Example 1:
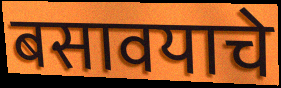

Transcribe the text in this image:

बसावयाचे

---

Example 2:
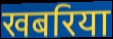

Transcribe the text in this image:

खबरिया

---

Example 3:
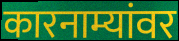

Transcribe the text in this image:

कारनाम्यांवर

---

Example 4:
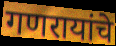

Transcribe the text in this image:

गणरायांचे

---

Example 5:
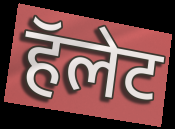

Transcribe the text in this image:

हॅलेट